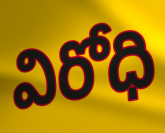
విరోధి